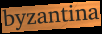
byzantina